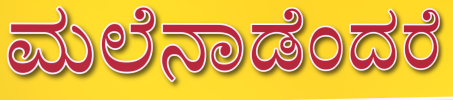
ಮಲೆನಾಡೆಂದರೆ